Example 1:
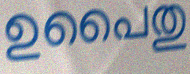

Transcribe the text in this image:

ഉപൈതു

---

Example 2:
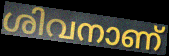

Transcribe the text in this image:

ശിവനാണ്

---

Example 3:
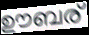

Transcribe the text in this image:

ഊബര്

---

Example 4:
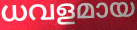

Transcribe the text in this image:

ധവളമായ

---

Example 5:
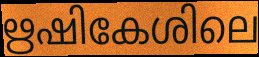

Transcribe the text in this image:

ഋഷികേശിലെ